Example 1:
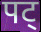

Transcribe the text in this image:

पट्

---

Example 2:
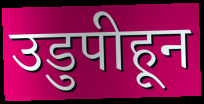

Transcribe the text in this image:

उडुपीहून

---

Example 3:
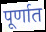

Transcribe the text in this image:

पूर्णात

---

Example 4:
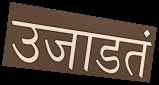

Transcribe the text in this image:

उजाडतं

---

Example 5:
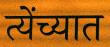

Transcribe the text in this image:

त्येंच्यात